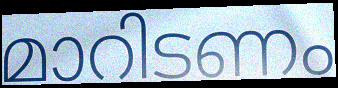
മാറിടണം